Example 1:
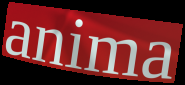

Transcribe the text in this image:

anima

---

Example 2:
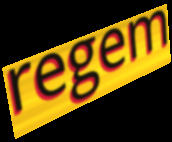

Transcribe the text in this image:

regem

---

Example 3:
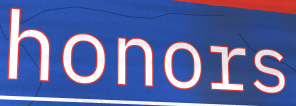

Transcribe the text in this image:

honors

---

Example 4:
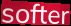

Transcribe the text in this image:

softer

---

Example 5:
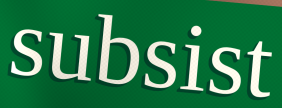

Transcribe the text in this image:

subsist